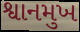
શ્વાનમુખ